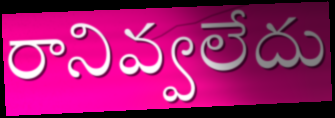
రానివ్వలేదు